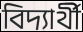
বিদ্যাৰ্থী